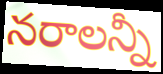
నరాలన్నీ